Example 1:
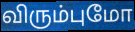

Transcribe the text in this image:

விரும்புமோ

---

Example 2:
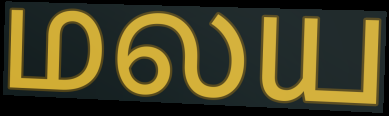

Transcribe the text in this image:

மலய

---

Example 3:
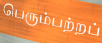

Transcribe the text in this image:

பெரும்பற்றப்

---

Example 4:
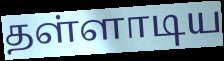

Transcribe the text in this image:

தள்ளாடிய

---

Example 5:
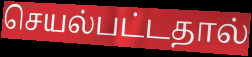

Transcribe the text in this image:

செயல்பட்டதால்